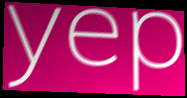
yep